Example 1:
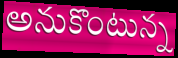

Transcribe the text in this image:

అనుకొంటున్న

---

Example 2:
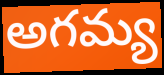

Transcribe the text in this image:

అగమ్య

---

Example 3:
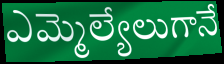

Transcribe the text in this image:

ఎమ్మెల్యేలుగానే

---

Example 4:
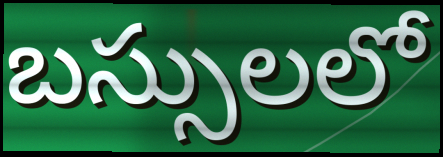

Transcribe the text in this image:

బస్సులలో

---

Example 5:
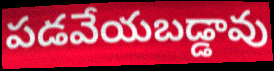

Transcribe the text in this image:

పడవేయబడ్డావు